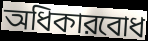
অধিকারবোধ